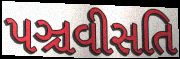
પઞ્ચવીસતિ